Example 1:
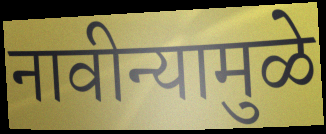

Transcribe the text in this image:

नावीन्यामुळे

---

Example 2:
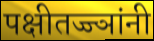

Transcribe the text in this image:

पक्षीतज्ज्ञांनी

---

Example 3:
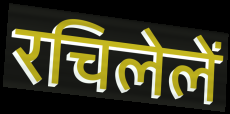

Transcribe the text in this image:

रचिलेलें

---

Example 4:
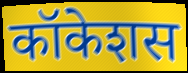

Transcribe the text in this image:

कॉकेशस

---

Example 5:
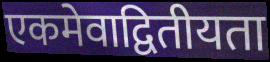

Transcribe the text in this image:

एकमेवाद्वितीयता